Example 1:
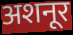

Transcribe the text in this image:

अशनूर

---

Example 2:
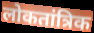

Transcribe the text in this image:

लोकतांत्रिक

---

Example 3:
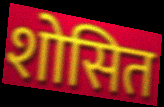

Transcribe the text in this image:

शोसित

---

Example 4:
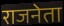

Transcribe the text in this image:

राजनेता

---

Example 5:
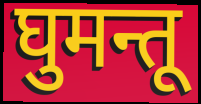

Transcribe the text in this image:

घुमन्तू